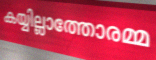
കയ്യില്ലാത്തോരമ്മ